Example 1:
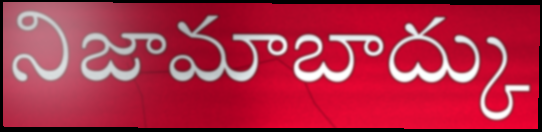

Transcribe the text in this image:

నిజామాబాద్కు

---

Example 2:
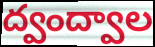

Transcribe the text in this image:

ద్వంద్వాల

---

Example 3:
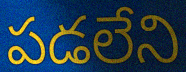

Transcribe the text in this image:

పడలేని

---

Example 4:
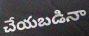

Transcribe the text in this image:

చేయబడినా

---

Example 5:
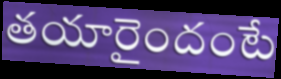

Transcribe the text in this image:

తయారైందంటే